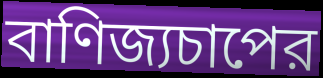
বাণিজ্যচাপের